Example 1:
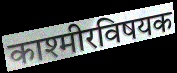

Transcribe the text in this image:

काश्मीरविषयक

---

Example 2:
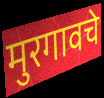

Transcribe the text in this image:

मुरगावचे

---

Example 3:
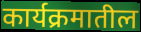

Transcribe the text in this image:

कार्यक्रमातील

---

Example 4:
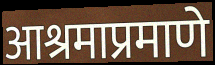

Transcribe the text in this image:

आश्रमाप्रमाणे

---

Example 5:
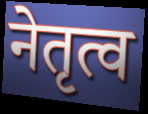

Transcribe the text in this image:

नेतृत्व